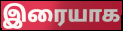
இரையாக